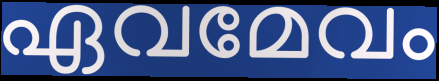
ഏവമേവം